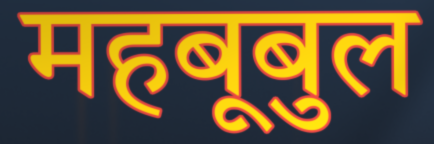
महबूबुल